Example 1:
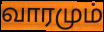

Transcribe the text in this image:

வாரமும்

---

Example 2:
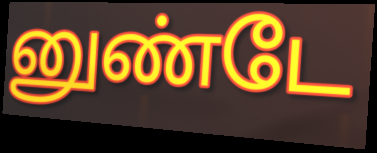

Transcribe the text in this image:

னுண்டே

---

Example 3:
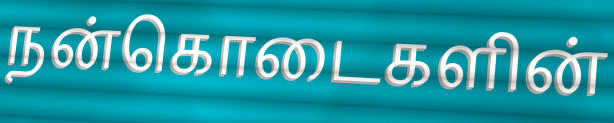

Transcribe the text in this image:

நன்கொடைகளின்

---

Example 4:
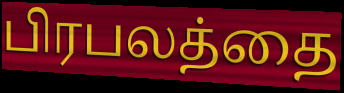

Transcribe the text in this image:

பிரபலத்தை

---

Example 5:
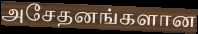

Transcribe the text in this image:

அசேதனங்களான